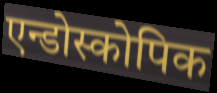
एन्डोस्कोपिक